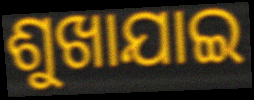
ଶୁଖାଯାଇ